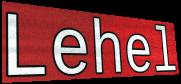
Lehel